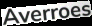
Averroes